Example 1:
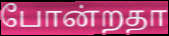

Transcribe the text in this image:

போன்றதா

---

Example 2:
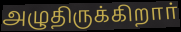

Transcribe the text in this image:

அழுதிருக்கிறார்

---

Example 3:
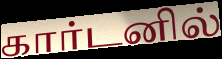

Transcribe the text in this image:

கார்டனில்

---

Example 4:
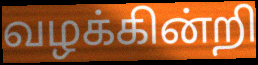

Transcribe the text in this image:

வழக்கின்றி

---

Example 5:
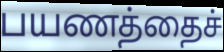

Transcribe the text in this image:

பயணத்தைச்